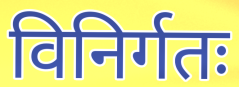
विनिर्गतः